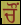
ਚੌਂ